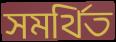
সমৰ্থিত